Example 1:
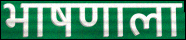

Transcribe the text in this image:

भाषणाला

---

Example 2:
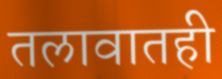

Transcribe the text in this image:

तलावातही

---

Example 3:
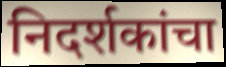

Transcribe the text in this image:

निदर्शकांचा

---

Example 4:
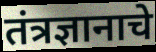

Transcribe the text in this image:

तंत्रज्ञानाचे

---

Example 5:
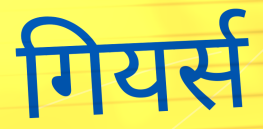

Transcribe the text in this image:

गियर्स